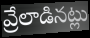
వ్రేలాడినట్లు